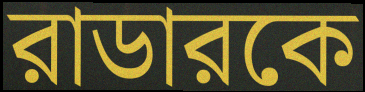
রাডারকে